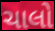
ચાલો